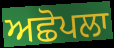
ਅਛੋਪਲਾ